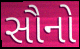
સૌનો